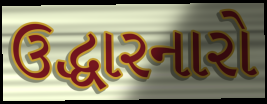
ઉદ્ધારનારો